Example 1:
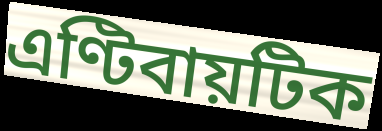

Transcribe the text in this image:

এণ্টিবায়টিক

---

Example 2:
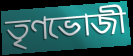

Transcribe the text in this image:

তৃণভোজী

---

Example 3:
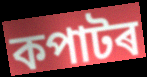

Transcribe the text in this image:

কপাটৰ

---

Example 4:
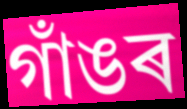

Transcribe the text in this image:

গাঁঙৰ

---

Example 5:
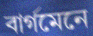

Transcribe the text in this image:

বাৰ্গমেনে